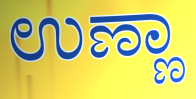
ಉಣ್ಣಾ